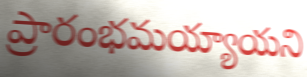
ప్రారంభమయ్యాయని